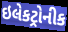
ઇલેકટ્રોનીક